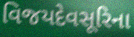
વિજયદેવસૂરિના